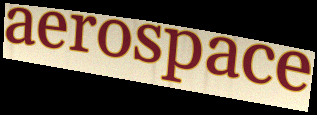
aerospace